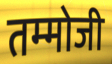
तम्मोजी